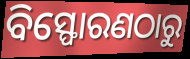
ବିସ୍ଫୋରଣଠାରୁ